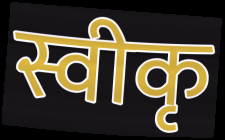
स्वीकृ